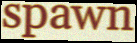
spawn